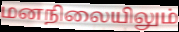
மனநிலையிலும்